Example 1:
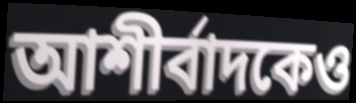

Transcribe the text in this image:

আশীর্বাদকেও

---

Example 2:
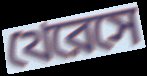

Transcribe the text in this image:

থেরেসে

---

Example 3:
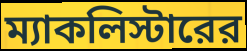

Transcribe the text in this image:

ম্যাকলিস্টারের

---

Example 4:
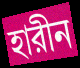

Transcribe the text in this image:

হারীন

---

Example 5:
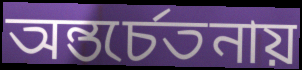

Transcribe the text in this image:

অন্তর্চেতনায়